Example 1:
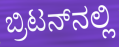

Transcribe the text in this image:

ಬ್ರಿಟನ್‌ನಲ್ಲಿ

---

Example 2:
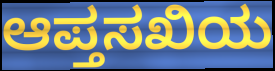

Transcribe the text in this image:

ಆಪ್ತಸಖಿಯ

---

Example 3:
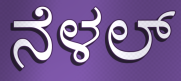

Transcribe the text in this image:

ನೆಳಲ್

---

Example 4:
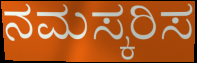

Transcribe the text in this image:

ನಮಸ್ಕರಿಸ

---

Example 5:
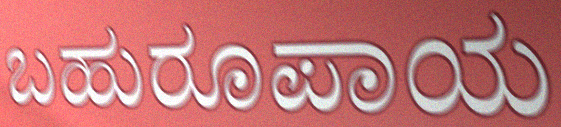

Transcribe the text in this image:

ಬಹುರೂಪಾಯ